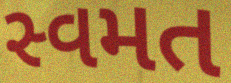
સ્વમત